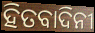
ହିତବାଦିନୀ